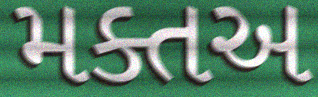
મક્તઅ